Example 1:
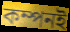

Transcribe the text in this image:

কম্পনই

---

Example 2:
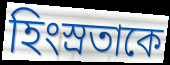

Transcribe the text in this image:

হিংস্রতাকে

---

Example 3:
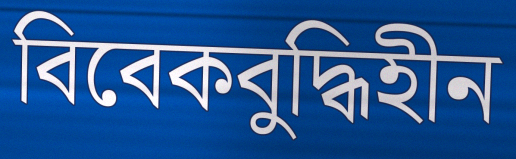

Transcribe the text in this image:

বিবেকবুদ্ধিহীন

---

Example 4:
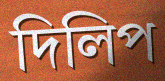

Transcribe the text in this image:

দিলিপ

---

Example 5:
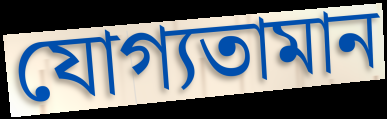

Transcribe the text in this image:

যোগ্যতামান